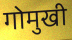
गोमुखी